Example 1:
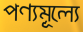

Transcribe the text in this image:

পণ্যমূল্যে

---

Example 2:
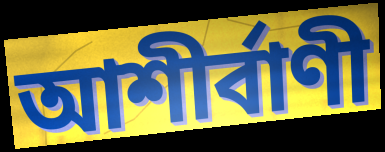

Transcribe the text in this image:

আশীর্বাণী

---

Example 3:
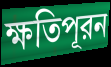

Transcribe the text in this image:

ক্ষতিপূরন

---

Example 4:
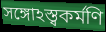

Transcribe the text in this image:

সঙ্গোঽস্ত্বকর্মণি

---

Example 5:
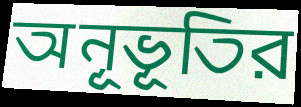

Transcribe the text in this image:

অনূভূতির